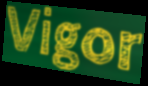
Vigor